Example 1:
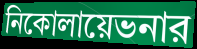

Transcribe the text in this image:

নিকোলায়েভনার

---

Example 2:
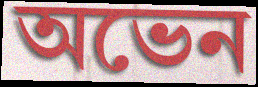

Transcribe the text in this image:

অভেন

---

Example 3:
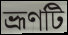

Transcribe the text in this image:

ভ্রূণটি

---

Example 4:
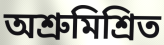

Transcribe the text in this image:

অশ্রুমিশ্রিত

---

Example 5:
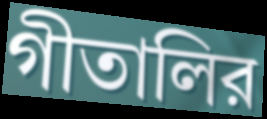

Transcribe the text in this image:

গীতালির